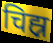
चिह्न